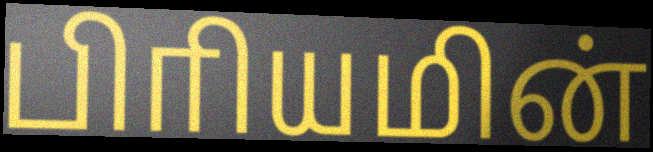
பிரியமின்